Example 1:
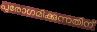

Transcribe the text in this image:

പുരോഗമിക്കുന്നതിന്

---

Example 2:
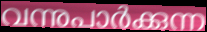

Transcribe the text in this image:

വന്നുപാർക്കുന്ന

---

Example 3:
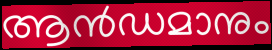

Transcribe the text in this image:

ആൻഡമാനും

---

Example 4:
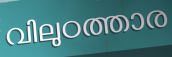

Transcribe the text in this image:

വിലുഠത്താര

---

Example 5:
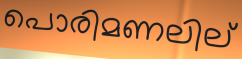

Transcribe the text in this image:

പൊരിമണലില്